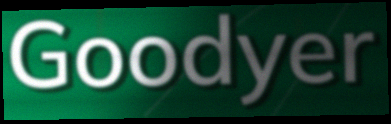
Goodyer